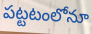
పట్టటంలోనూ